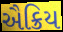
ઐક્રિય